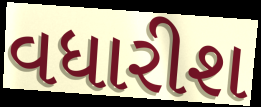
વધારીશ